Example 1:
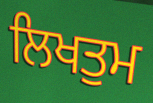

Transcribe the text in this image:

ਲਿਖਤੁਮ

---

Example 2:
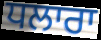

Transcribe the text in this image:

ਧਲਾਰਾ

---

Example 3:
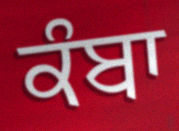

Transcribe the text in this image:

ਕੰਬਾ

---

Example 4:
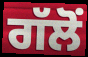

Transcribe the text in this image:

ਗੱਲੋਂ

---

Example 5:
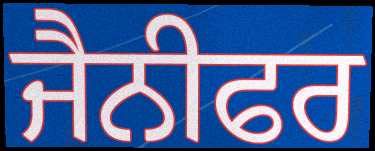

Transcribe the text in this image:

ਜੈਨੀਫਰ